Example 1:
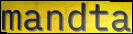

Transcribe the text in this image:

mandta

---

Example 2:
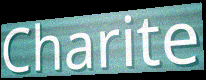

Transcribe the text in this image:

Charite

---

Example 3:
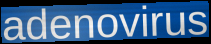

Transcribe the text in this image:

adenovirus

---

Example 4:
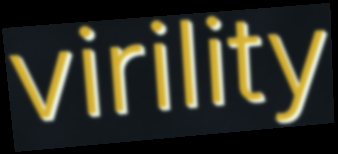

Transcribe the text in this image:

virility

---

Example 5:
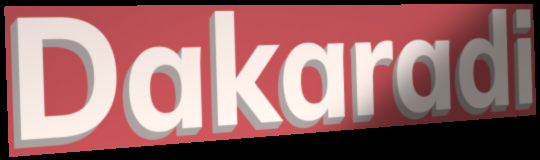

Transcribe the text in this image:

Dakaradi